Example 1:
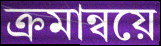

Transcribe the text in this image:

ক্রমান্বয়ে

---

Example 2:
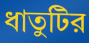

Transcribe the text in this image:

ধাতুটির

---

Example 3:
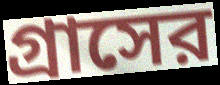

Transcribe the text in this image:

গ্রাসের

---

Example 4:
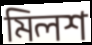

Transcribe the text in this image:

মিলশ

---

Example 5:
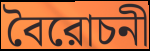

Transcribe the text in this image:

বৈরোচনী